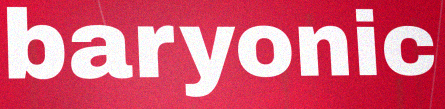
baryonic